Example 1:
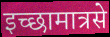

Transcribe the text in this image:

इच्छामात्रसे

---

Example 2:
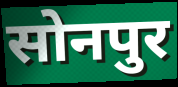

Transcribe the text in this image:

सोनपुर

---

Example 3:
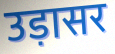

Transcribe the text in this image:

उड़ासर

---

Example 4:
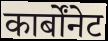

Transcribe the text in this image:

कार्बोंनेट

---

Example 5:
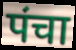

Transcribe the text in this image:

पंचा